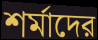
শর্মাদের